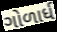
ગોળાર્ધ